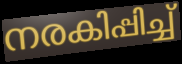
നരകിപ്പിച്ച്